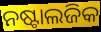
ନଷ୍ଟାଲଜିକ